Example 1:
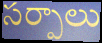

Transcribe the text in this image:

సర్పాలు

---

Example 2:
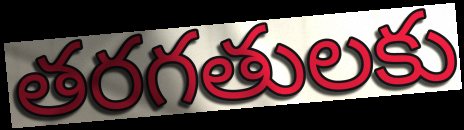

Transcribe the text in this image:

తరగతులకు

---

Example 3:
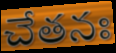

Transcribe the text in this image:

చేతనః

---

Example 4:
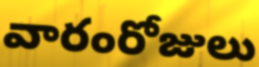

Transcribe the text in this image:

వారంరోజులు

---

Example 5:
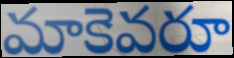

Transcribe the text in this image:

మాకెవరూ